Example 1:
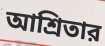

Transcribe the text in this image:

আশ্রিতার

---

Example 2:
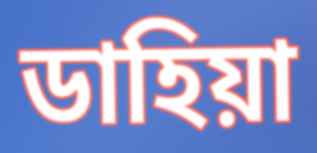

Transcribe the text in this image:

ডাহিয়া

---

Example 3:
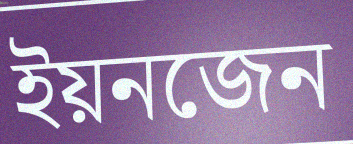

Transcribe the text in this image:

ইয়নজেন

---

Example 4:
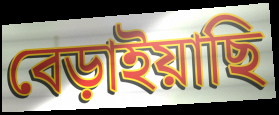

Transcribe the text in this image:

বেড়াইয়াছি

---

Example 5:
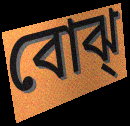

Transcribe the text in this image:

বোঝ্